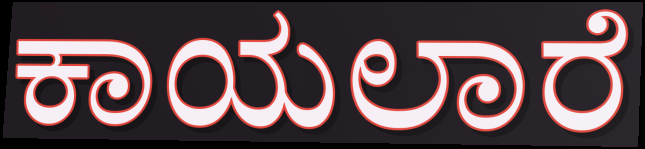
ಕಾಯಲಾರೆ